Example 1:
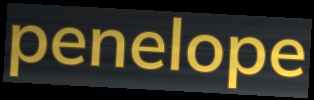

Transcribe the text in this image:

penelope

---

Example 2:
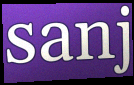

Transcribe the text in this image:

sanj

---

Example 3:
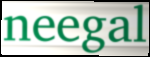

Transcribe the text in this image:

neegal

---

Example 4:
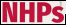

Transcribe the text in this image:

NHPs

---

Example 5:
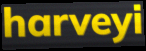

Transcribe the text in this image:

harveyi